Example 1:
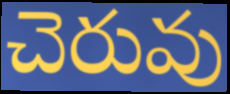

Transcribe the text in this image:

చెరువు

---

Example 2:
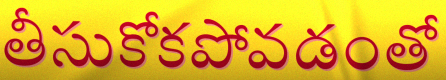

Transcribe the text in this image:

తీసుకోకపోవడంతో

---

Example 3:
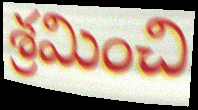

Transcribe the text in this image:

శ్రమించి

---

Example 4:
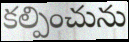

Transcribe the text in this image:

కల్పించును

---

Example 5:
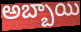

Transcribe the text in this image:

అబ్బాయి